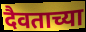
दैवताच्या